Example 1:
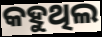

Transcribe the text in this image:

କହୁଥିଲ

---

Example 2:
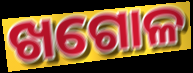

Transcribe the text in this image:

ଖଗୋଳ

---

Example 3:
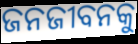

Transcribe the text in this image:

ଜନଜୀବନକୁ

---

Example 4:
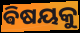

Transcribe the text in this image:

ଵିଷୟକୁ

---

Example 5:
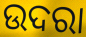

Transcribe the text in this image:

ଉଦରା